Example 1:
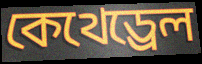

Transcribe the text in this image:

কেথেড্ৰেল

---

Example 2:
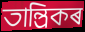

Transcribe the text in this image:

তান্ত্ৰিকৰ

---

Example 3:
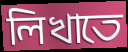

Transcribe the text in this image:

লিখাতে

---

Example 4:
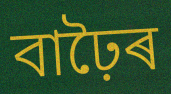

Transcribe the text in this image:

বাঢ়ৈৰ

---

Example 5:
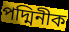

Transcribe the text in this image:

পদ্মিনীক